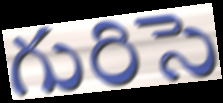
గురిసె